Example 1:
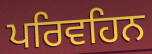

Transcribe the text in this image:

ਪਰਿਵਹਿਨ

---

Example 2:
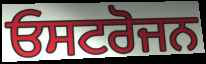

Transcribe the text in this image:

ਓਸਟਰੋਜਨ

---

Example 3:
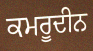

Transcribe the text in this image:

ਕਮਰੂਦੀਨ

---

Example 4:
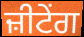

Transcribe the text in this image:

ਜ਼ੀਟੇਂਗ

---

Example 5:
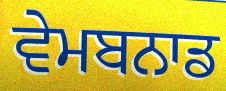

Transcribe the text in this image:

ਵੇਮਬਨਾਡ